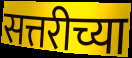
सत्तरीच्या